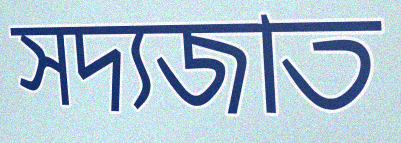
সদ্যজাত